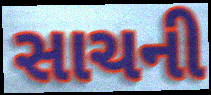
સાચની